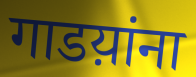
गाडय़ांना